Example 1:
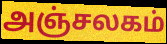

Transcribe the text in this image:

அஞ்சலகம்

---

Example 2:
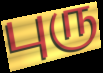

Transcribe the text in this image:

புரு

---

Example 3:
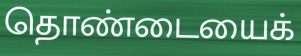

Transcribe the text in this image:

தொண்டையைக்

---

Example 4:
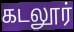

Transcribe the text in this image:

கடலூர்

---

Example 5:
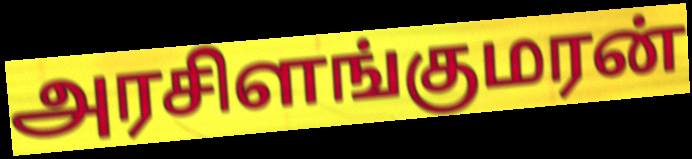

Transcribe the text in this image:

அரசிளங்குமரன்